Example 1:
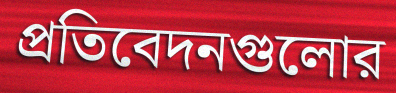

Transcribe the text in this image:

প্রতিবেদনগুলোর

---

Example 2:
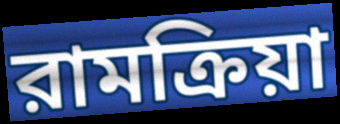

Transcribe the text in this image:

রামক্রিয়া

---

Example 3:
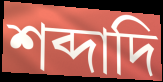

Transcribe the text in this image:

শব্দাদি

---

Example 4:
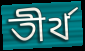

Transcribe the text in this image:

তীর্থ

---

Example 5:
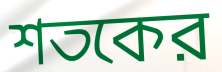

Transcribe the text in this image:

শতকের